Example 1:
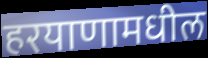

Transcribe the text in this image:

हरयाणामधील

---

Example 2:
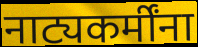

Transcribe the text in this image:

नाट्यकर्मींना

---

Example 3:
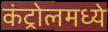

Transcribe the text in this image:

कंट्रोलमध्ये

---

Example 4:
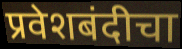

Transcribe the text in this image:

प्रवेशबंदीचा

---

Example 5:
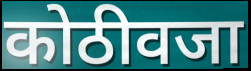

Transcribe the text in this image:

कोठीवजा